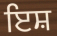
ਇਸ਼